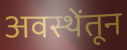
अवस्थेंतून